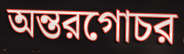
অন্তরগোচর